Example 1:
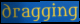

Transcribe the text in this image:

dragging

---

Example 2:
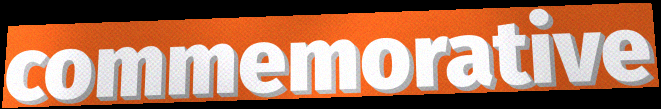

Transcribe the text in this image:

commemorative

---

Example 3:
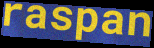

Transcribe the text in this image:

raspan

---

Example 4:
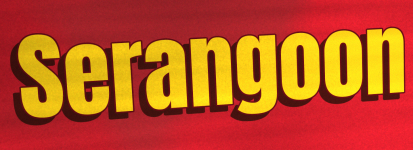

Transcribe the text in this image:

Serangoon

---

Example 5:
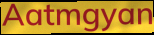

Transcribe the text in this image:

Aatmgyan